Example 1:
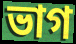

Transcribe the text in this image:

ভাগ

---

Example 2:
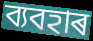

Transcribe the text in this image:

ব্যবহাৰ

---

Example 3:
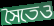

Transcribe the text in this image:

সৈতেও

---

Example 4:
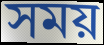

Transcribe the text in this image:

সময়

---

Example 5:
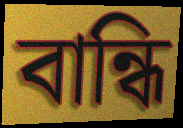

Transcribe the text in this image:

বান্ধি